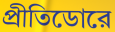
প্রীতিডোরে